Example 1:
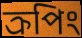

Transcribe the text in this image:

ক্রপিং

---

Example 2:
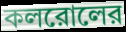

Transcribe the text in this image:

কলরোলের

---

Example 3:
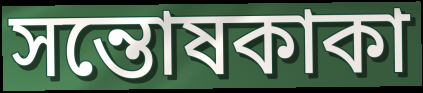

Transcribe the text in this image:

সন্তোষকাকা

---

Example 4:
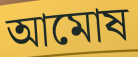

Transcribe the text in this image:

আমোষ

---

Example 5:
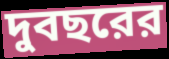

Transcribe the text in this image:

দুবছরের